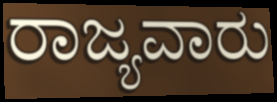
ರಾಜ್ಯವಾರು